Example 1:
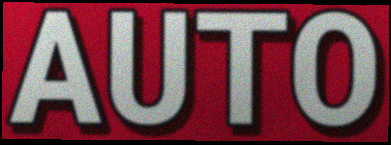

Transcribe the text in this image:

AUTO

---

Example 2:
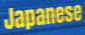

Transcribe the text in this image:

Japanese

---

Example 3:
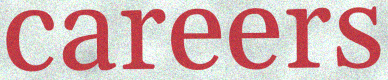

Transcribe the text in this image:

careers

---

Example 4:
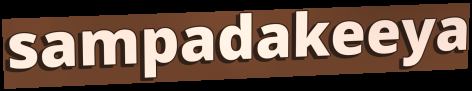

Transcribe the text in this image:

sampadakeeya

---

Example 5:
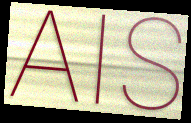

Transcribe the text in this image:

AIS